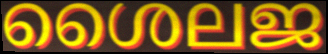
ശൈലജ